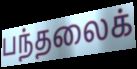
பந்தலைக்